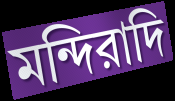
মন্দিরাদি